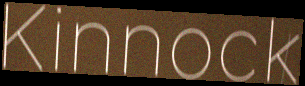
Kinnock